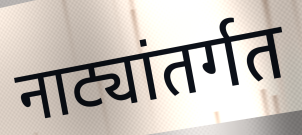
नाट्यांतर्गत